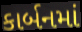
કાર્બનમાં